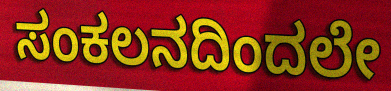
ಸಂಕಲನದಿಂದಲೇ